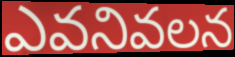
ఎవనివలన